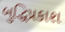
બુદ્ધિપ્રકાશ